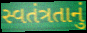
સ્વતંત્રતાનું